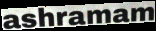
ashramam